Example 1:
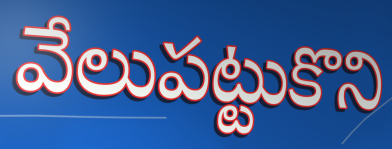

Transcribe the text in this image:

వేలుపట్టుకొని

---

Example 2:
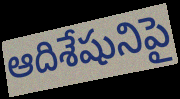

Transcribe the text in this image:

ఆదిశేషునిపై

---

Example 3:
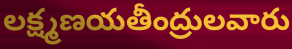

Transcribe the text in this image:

లక్ష్మణయతీంద్రులవారు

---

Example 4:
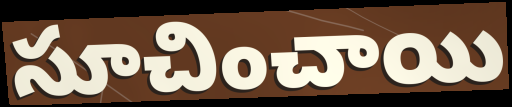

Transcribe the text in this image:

సూచించాయి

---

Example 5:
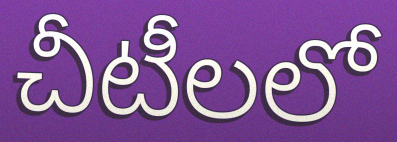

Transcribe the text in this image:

చీటీలలో